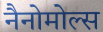
नैनोमोल्स